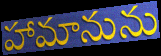
హామానును